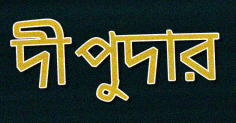
দীপুদার